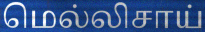
மெல்லிசாய்